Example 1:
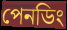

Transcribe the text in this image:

পেনডিং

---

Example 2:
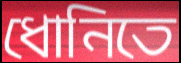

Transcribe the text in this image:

ধোনিতে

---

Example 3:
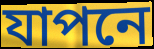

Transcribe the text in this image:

যাপনে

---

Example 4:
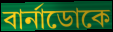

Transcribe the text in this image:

বার্নাডোকে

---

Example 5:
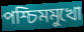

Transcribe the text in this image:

পশ্চিমমুখো